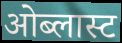
ओब्लास्ट